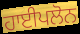
ਹਾਈਪਲੋਨ